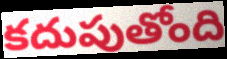
కదుపుతోంది